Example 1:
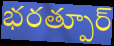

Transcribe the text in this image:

భరత్పూర్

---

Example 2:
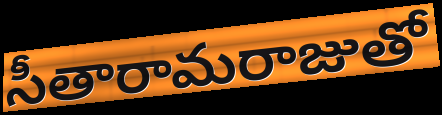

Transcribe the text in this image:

సీతారామరాజుతో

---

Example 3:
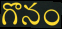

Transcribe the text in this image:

గొనం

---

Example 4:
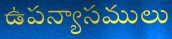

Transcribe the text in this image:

ఉపన్యాసములు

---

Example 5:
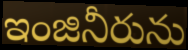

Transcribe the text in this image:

ఇంజినీరును